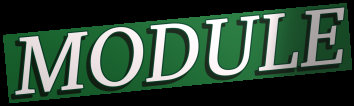
MODULE